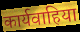
कार्यवाहिया